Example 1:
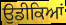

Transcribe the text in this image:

ਉਡੀਕਿਆਂ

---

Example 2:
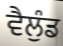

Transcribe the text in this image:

ਵੈਲੁੰਡ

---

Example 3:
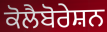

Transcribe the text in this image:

ਕੋਲੈਬੋਰੇਸ਼ਨ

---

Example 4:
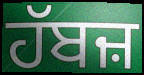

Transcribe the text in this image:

ਹੱਬਜ਼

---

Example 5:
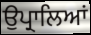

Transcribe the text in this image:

ਉਪ੍ਰਾਲਿਆਂ